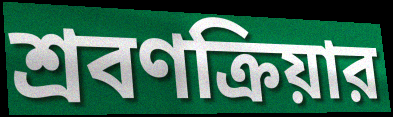
শ্রবণক্রিয়ার